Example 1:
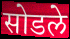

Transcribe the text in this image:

सोडले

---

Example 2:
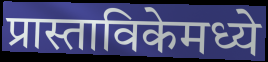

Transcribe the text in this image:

प्रास्ताविकेमध्ये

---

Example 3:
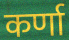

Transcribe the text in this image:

कर्णा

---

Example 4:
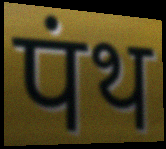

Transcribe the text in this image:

पंथ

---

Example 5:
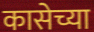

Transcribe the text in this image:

कासेच्या